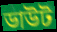
ডাউট